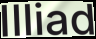
Illiad